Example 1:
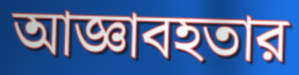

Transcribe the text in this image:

আজ্ঞাবহতার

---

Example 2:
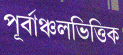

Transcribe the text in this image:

পূর্বাঞ্চলভিত্তিক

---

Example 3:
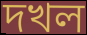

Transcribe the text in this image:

দখল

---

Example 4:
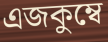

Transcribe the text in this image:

এজকুম্বে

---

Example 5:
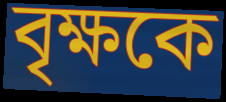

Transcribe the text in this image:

বৃক্ষকে